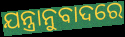
ଯନ୍ତ୍ରାନୁବାଦରେ